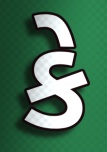
કે